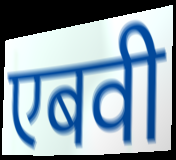
एबवी